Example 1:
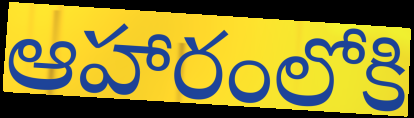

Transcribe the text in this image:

ఆహారంలోకి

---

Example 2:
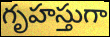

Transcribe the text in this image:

గృహస్తుగా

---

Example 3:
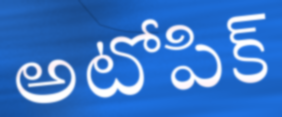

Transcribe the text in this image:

అటోపిక్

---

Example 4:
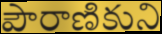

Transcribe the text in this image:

పౌరాణికుని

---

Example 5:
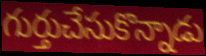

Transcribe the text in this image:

గుర్తుచేసుకొన్నాడు